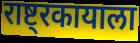
राष्ट्रकायाला